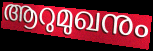
ആറുമുഖനും